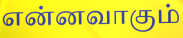
என்னவாகும்